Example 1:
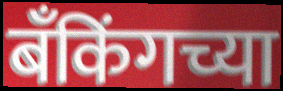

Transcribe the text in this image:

बँकिंगच्या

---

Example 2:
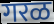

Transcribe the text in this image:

गरळ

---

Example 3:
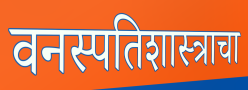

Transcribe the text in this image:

वनस्पतिशास्त्राचा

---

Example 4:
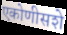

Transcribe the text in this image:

एकोणीसशे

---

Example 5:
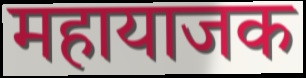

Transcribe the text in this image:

महायाजक